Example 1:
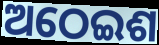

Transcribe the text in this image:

ଅଠେଇଶ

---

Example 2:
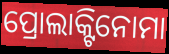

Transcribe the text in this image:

ପ୍ରୋଲାକ୍ଟିନୋମା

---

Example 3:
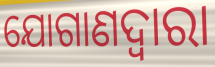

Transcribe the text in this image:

ଯୋଗାଣଦ୍ଵାରା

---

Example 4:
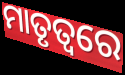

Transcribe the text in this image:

ମାତୃତ୍ୱରେ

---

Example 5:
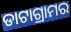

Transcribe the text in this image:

ଡାଟାଗ୍ରାମର